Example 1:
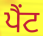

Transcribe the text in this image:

ਪੈਂਟ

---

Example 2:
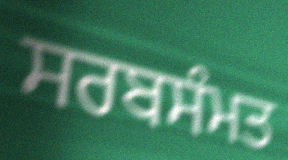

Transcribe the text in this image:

ਸਰਬਸੰਮਤ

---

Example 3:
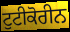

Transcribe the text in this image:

ਟੁਟੀਕੋਰੀਨ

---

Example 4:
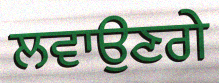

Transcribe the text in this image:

ਲਵਾਉਣਗੇ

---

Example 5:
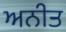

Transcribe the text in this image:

ਅਨੀਤ